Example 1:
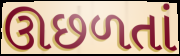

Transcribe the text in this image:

ઊછળતાં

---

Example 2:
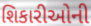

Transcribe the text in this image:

શિકારીઓની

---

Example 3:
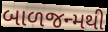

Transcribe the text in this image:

બાળજન્મથી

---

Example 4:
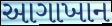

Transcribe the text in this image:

આગાખાન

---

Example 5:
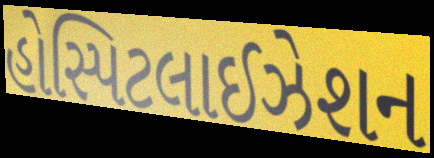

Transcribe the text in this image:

હોસ્પિટલાઈઝેશન